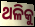
ଥଳିକୁ